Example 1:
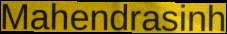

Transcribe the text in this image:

Mahendrasinh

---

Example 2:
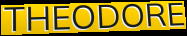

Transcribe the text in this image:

THEODORE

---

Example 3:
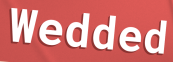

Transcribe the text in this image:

Wedded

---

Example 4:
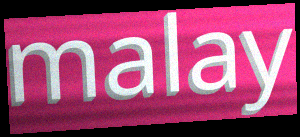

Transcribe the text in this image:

malay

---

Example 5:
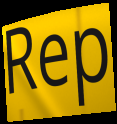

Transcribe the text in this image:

Rep